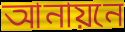
আনায়নে